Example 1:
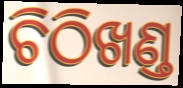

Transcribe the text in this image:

ଚିଠିଖଣ୍ଡ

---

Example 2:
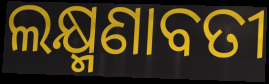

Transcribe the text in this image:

ଲକ୍ଷ୍ମଣାବତୀ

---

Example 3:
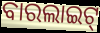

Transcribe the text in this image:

ବାରଲାଇଟ୍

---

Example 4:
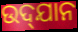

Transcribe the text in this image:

ଉଦ୍‌ଯାନ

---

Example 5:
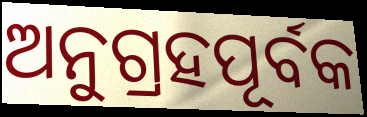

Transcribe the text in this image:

ଅନୁଗ୍ରହପୂର୍ବକ